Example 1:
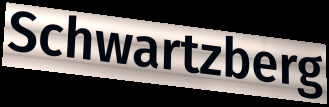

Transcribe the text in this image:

Schwartzberg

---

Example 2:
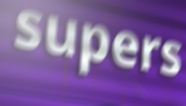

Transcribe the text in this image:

supers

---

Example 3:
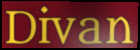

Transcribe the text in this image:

Divan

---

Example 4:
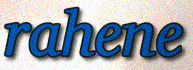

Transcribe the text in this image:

rahene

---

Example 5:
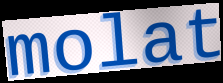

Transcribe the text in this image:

molat